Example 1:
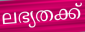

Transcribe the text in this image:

ലഭ്യതക്ക്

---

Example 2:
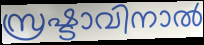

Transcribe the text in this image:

സ്രഷ്ടാവിനാൽ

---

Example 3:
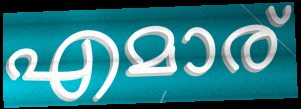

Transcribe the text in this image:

എമാര്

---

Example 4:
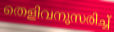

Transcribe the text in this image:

തെളിവനുസരിച്ച്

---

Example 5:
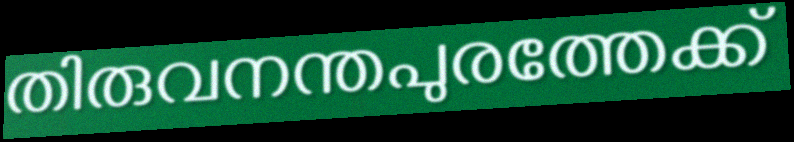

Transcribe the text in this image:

തിരുവനന്തപുരത്തേക്ക്